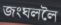
জংঘললৈ